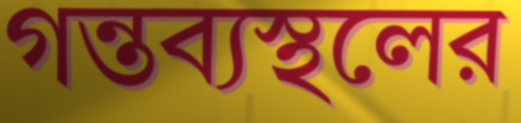
গন্তব্যস্থলের